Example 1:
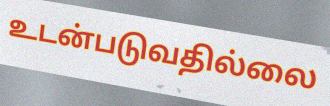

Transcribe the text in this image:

உடன்படுவதில்லை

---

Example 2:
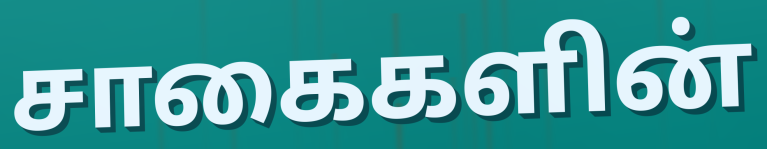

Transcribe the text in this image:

சாகைகளின்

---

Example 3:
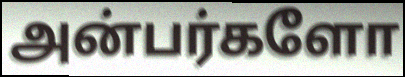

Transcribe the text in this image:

அன்பர்களோ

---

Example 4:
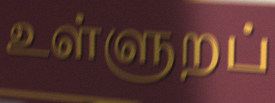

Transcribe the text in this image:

உள்ளுறப்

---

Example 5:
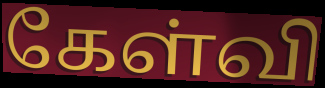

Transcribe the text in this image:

கேள்வி